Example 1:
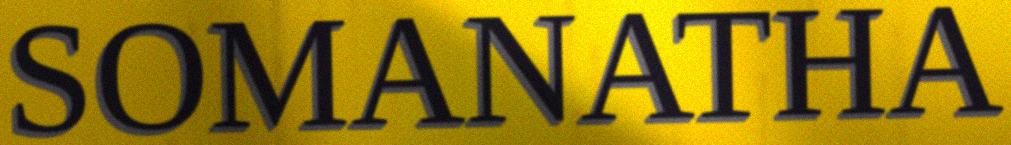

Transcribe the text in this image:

SOMANATHA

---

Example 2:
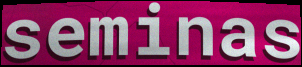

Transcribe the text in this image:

seminas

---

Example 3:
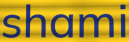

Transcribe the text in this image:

shami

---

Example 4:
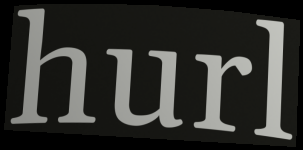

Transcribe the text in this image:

hurl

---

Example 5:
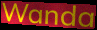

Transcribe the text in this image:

Wanda